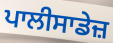
ਪਾਲੀਸਾਡੇਜ਼